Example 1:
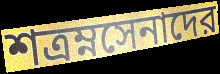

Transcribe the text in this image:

শত্রম্নসেনাদের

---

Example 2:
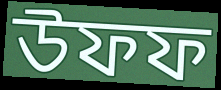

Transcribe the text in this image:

উফফ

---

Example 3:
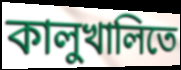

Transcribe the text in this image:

কালুখালিতে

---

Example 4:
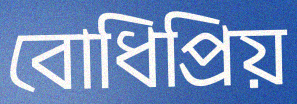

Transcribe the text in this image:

বোধিপ্রিয়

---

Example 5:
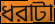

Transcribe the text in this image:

ধরাটা